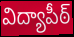
విద్యాపీఠ్